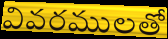
వివరములతో